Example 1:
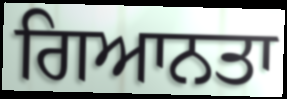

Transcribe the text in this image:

ਗਿਆਨਤਾ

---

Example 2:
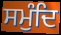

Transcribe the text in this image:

ਸਮੁੰਦਿ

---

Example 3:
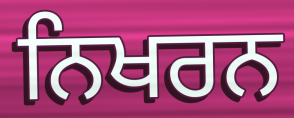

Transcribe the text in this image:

ਨਿਖਰਨ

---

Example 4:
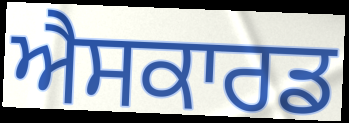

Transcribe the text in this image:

ਐਸਕਾਰਡ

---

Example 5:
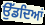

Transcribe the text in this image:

ਉੱਡਦਿਆਂ